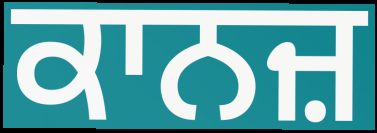
ਕਾਨਜ਼